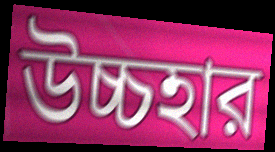
উচ্চহার